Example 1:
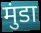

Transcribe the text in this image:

मुंडा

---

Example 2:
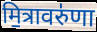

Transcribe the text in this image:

मि॒त्रावरु॑णा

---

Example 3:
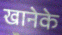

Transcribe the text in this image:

खानेके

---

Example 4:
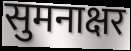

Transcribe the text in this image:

सुमनाक्षर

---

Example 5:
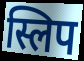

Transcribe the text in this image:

स्लिप